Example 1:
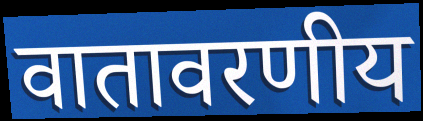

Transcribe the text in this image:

वातावरणीय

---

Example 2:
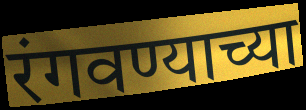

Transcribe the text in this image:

रंगवण्याच्या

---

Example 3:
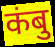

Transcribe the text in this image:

कंबु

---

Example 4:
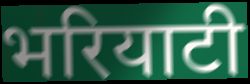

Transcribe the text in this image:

भरियाटी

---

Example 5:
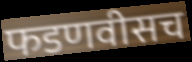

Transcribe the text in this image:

फडणवीसच